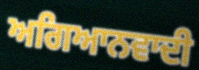
ਅਗਿਆਨਵਾਦੀ